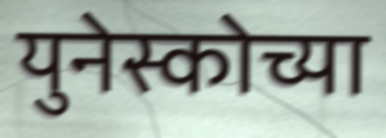
युनेस्कोच्या